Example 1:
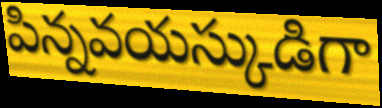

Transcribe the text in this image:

పిన్నవయస్కుడిగా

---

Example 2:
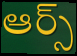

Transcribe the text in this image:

ఆర్స్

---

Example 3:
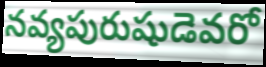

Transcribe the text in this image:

నవ్యపురుషుడెవరో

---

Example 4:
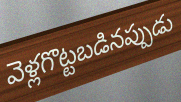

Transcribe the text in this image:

వెళ్లగొట్టబడినప్పుడు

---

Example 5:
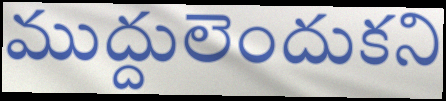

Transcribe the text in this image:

ముద్దులెందుకని